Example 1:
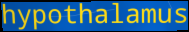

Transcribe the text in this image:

hypothalamus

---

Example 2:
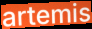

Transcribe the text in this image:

artemis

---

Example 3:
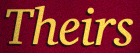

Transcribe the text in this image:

Theirs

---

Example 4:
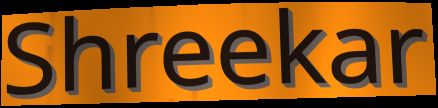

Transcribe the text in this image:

Shreekar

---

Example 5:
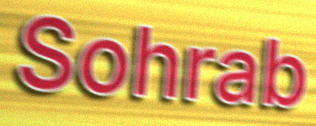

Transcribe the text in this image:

Sohrab